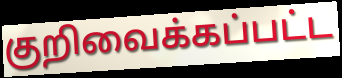
குறிவைக்கப்பட்ட